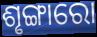
ଶୃଙ୍ଗାରୋ